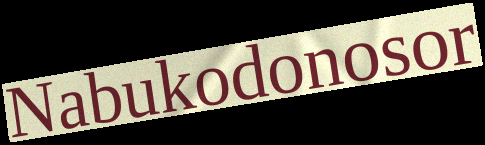
Nabukodonosor